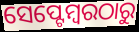
ସେପ୍ଟେମ୍ବରଠାରୁ